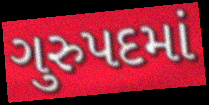
ગુરુપદમાં